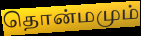
தொன்மமும்